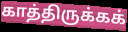
காத்திருக்கக்